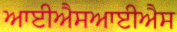
ਆਈਐਸਆਈਐਸ